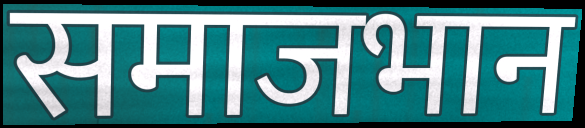
समाजभान